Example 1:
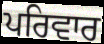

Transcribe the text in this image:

ਪਰਿਵਾਰ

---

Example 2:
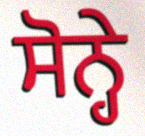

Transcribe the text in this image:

ਸੋਨ੍ਹੇ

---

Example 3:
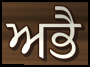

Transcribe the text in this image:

ਅਭੈ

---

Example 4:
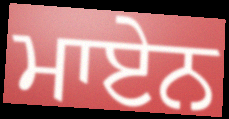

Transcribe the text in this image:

ਮਾਏਨ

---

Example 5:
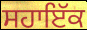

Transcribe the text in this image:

ਸਹਾਇੱਕ